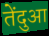
तेंदुआ